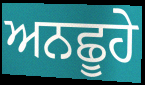
ਅਨਛੂਹੇ